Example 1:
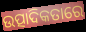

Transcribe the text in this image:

ଉତ୍ପାଦିକତାରେ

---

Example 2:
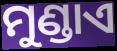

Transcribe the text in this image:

ମୁଣ୍ଡାଏ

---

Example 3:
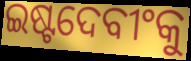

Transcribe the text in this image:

ଇଷ୍ଟଦେବୀଂକୁ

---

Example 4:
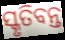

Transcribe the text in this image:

ସ୍କୃତିବନ୍ତ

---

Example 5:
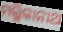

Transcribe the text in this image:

ମଲ୍ଲିକାନାଥ